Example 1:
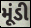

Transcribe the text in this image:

મૂંડી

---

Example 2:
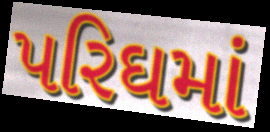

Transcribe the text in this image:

પરિઘમાં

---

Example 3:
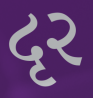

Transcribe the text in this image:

દૃર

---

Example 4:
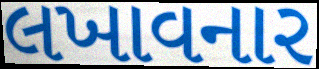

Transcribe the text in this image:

લખાવનાર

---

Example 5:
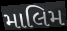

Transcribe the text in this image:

માલિમ